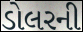
ડોલરની